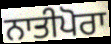
ਨਾਤੀਪੋਰਾ